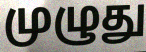
முழுது